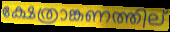
ക്ഷേത്രാങ്കണത്തില്